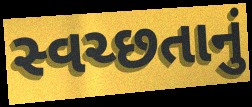
સ્વચ્છતાનું